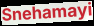
Snehamayi